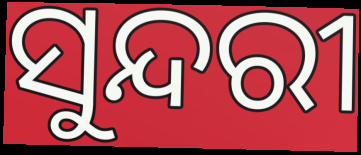
ସୁନ୍ଦରୀ